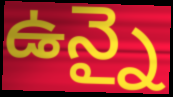
ఉన్నై